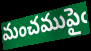
మంచముపైఁ